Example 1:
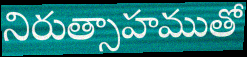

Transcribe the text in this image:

నిరుత్సాహముతో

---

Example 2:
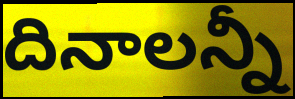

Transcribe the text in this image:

దినాలన్నీ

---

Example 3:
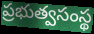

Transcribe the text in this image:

ప్రభుత్వసంస్థ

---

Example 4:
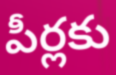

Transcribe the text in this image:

పీర్లకు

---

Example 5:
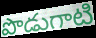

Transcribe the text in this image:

పొడుగాటి